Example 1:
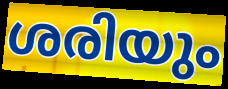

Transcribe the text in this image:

ശരിയും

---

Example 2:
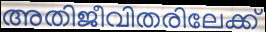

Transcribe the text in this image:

അതിജീവിതരിലേക്ക്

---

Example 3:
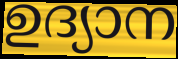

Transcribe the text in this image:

ഉദ്യാന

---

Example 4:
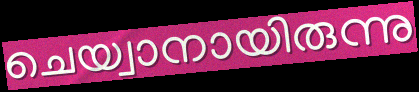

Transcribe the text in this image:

ചെയ്വാനായിരുന്നു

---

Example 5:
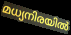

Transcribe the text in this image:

മധ്യനിരയിൽ